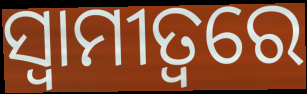
ସ୍ୱାମୀତ୍ୱରେ